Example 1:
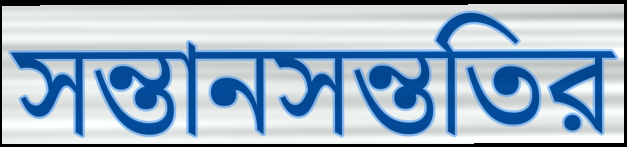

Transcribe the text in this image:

সন্তানসন্ততির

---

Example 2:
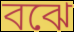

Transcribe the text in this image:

বঝে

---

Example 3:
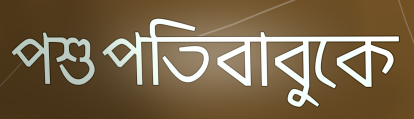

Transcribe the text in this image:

পশুপতিবাবুকে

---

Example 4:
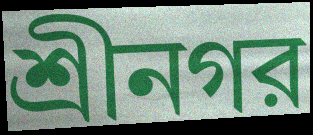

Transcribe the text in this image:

শ্রীনগর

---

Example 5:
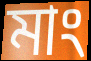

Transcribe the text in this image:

মাং